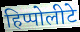
हिप्पोलीटे